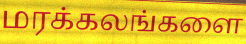
மரக்கலங்களை